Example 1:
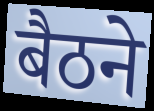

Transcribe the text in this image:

बैठने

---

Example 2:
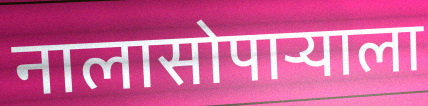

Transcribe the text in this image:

नालासोपाऱ्याला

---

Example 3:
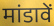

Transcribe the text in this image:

मांडावें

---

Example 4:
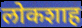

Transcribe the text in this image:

लोकशाह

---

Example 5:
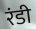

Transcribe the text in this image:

रंडी